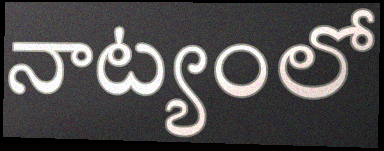
నాట్యంలో